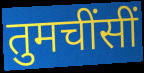
तुमचींसीं